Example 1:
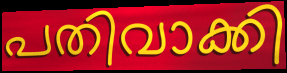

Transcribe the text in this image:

പതിവാക്കി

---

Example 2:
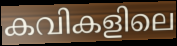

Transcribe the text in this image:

കവികളിലെ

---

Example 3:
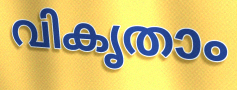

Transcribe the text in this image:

വികൃതാം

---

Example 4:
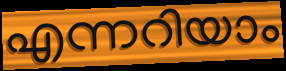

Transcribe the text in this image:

എന്നറിയാം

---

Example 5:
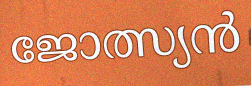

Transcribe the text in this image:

ജോത്സ്യൻ